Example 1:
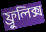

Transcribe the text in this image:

ফ্রুলিক্স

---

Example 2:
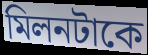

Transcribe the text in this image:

মিলনটাকে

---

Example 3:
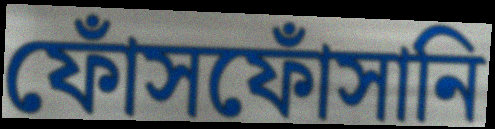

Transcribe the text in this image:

ফোঁসফোঁসানি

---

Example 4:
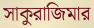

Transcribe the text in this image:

সাকুরাজিমার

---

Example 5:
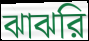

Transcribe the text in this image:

ঝাঝরি